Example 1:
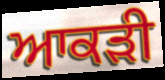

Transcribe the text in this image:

ਆਕੜੀ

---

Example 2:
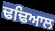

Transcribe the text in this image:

ਢਢਿਆਲ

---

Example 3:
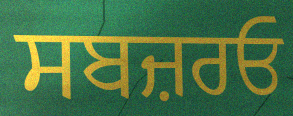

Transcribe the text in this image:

ਸਬਜ਼ਰਓ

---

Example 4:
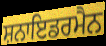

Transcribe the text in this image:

ਸ਼ਨਾਇਡਰਮੈਨ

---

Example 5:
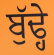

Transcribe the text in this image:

ਬੁੱਢ੍ਹੇ